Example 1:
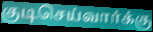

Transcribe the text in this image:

குடிசெய்வார்க்கு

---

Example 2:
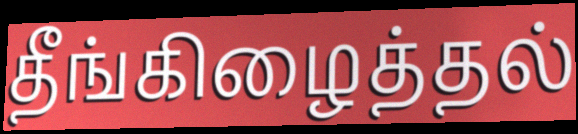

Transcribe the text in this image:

தீங்கிழைத்தல்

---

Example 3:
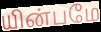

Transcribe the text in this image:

யின்பமே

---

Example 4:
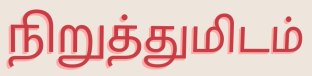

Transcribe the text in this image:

நிறுத்துமிடம்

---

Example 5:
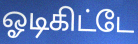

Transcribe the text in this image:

ஓடிகிட்டே